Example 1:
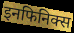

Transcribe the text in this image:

इनफिनिक्स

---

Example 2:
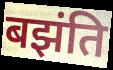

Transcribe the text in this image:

बझंति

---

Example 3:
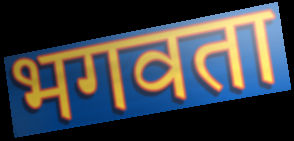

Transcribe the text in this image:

भगवता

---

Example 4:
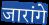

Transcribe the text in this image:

जारांगे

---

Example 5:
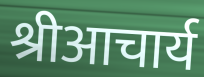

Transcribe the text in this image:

श्रीआचार्य